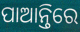
ପାଆନ୍ତିରେ